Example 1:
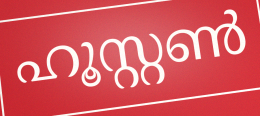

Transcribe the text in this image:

ഹൂസ്റ്റൺ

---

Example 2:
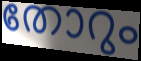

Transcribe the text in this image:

തോറും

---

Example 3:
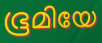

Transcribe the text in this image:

ഭൂമിയേ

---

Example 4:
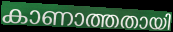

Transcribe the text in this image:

കാണാത്തതായി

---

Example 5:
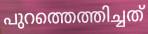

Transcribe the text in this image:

പുറത്തെത്തിച്ചത്